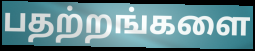
பதற்றங்களை